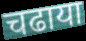
चढाया